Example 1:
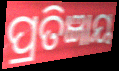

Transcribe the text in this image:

ପ୍ରତିଜ୍ଞାୟ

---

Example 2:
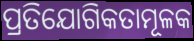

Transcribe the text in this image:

ପ୍ରତିଯୋଗିକତାମୂଳକ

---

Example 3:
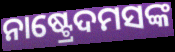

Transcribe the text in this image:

ନାଷ୍ଟ୍ରେଦମସଙ୍କ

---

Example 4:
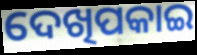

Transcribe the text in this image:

ଦେଖିପକାଇ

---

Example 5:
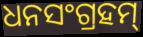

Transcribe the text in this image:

ଧନସଂଗ୍ରହମ୍